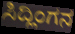
ಸಿದ್ಲಿಂಗನ